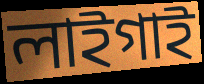
লাইগাই